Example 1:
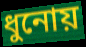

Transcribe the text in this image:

ধুনোয়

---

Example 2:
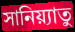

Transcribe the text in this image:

সানিয়্যাতু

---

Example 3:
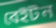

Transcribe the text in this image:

বেইটন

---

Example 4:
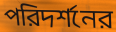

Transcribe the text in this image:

পরিদর্শনের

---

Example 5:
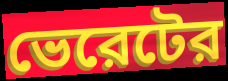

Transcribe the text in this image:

ভেরেটের